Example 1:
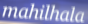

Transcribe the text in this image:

mahilhala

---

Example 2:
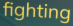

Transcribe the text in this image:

fighting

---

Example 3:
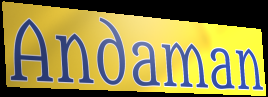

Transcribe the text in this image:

Andaman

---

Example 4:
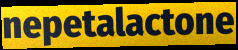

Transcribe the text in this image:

nepetalactone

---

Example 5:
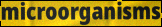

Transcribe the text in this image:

microorganisms